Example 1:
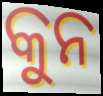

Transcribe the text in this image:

କୁନ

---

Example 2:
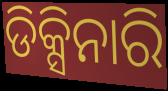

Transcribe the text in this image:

ଡିକ୍ସିନାରି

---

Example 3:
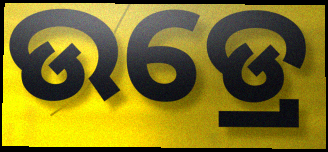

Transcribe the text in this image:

ଉଡ୍ରେ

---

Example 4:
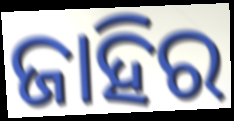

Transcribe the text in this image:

ଜାହିର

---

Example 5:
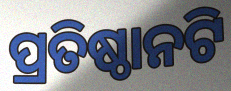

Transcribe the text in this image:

ପ୍ରତିଷ୍ଠାନଟି